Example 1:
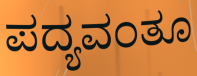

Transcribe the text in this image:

ಪದ್ಯವಂತೂ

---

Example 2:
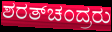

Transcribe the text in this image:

ಶರತ್‌ಚಂದ್ರರು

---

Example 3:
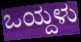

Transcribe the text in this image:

ಒಯ್ದಳು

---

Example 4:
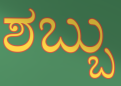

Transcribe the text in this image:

ಶಬ್ಬು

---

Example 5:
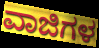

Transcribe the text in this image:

ವಾಜಿಗಳ